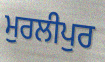
ਮੁਰਲੀਪੁਰ